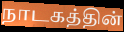
நாடகத்தின்